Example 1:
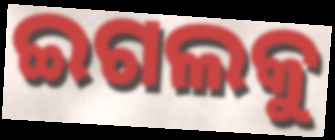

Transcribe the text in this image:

ଇଗଲକୁ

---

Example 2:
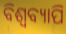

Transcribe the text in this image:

ବିଶ୍ବବ୍ୟାପି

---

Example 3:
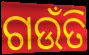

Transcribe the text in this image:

ଗଉଁତି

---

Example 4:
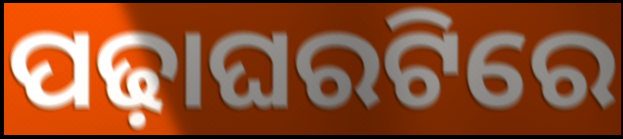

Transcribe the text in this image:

ପଢ଼ାଘରଟିରେ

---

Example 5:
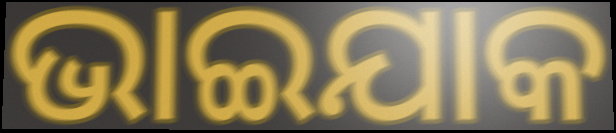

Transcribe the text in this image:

ଭାଇଯାକ